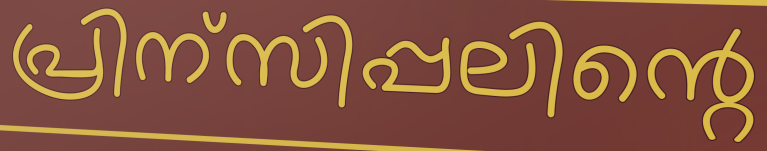
പ്രിന്സിപ്പലിന്റെ